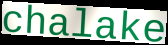
chalake